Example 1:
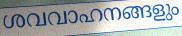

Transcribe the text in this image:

ശവവാഹനങ്ങളും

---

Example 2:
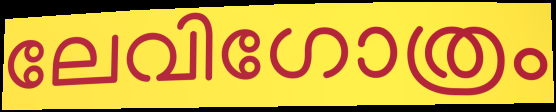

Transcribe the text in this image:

ലേവിഗോത്രം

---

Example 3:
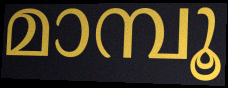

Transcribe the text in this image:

മാമ്പൂ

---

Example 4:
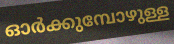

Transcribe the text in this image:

ഓർക്കുമ്പോഴുള്ള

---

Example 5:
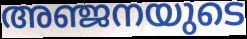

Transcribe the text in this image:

അഞ്ജനയുടെ